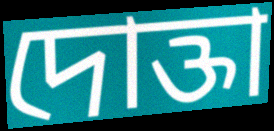
দোক্তা